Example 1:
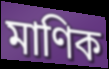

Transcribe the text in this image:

মাণিক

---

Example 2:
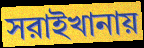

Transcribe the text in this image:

সরাইখানায়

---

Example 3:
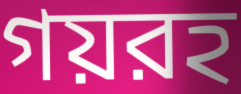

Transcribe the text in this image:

গয়রহ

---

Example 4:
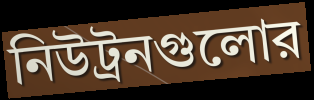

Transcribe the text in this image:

নিউট্রনগুলোর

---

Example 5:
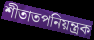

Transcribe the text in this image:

শীতাতপনিয়ন্ত্রক